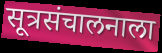
सूत्रसंचालनाला